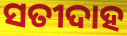
ସତୀଦାହ